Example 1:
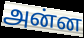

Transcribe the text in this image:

அன்ன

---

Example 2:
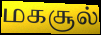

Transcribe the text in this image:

மகசூல்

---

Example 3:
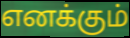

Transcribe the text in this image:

எனக்கும்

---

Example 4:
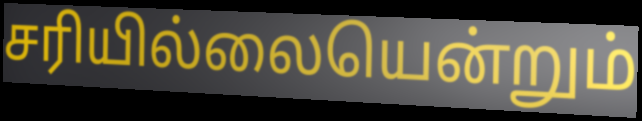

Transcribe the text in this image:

சரியில்லையென்றும்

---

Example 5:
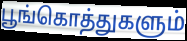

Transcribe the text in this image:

பூங்கொத்துகளும்